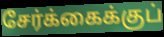
சேர்க்கைக்குப்